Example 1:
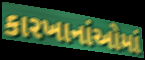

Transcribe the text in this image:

કારખાનાંઓમાં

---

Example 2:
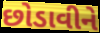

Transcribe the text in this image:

છોડાવીને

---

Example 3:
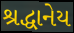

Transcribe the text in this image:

શ્રદ્ધાનેય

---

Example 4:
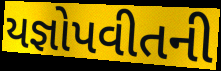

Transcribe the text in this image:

યજ્ઞોપવીતની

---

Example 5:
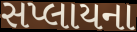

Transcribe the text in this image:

સપ્લાયના